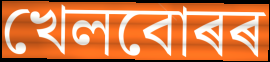
খেলবোৰৰ